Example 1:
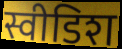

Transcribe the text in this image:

स्वीडिश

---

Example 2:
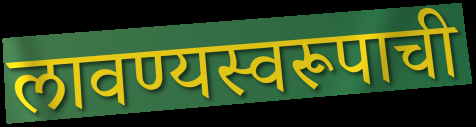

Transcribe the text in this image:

लावण्यस्वरूपाची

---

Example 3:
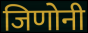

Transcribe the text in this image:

जिणोनी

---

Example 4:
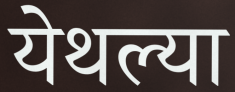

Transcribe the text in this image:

येथल्या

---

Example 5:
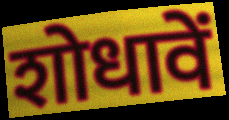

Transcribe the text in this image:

शोधावें